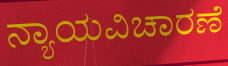
ನ್ಯಾಯವಿಚಾರಣೆ